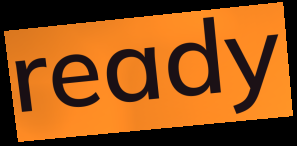
ready